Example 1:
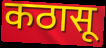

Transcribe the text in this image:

कठासू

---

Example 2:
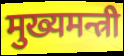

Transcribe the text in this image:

मुख्यमन्त्री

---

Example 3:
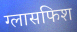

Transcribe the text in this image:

ग्लासफिश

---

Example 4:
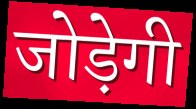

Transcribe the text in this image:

जोड़ेगी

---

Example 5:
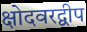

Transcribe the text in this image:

क्षोदवरद्वीप